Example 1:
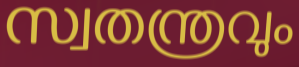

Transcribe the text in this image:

സ്വതന്ത്രവും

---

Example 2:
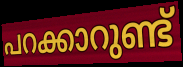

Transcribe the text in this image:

പറക്കാറുണ്ട്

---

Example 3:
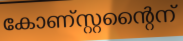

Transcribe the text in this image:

കോണ്സ്റ്റന്റൈന്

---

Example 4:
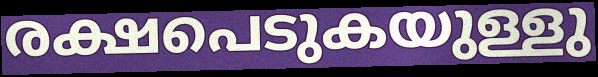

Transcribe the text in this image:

രക്ഷപെടുകയുള്ളു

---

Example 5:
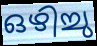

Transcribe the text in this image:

ഒഴിച്ചു